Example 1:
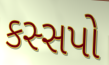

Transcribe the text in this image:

કસ્સપો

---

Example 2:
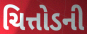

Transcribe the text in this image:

ચિત્તોડની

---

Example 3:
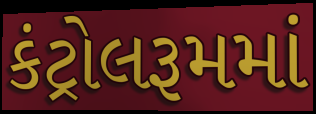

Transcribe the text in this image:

કંટ્રોલરૂમમાં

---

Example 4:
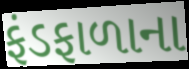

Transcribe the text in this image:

ફંડફાળાના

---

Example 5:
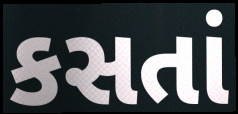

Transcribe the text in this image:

કસતાં